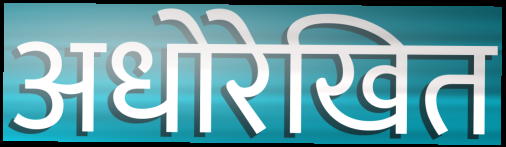
अधोरेखित